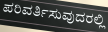
ಪರಿವರ್ತಿಸುವುದರಲ್ಲಿ